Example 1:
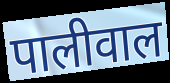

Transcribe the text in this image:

पालीवाल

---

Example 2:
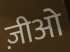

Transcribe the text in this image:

ज़ीओ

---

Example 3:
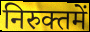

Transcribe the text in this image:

निरुक्तमें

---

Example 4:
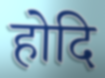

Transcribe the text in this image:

होदि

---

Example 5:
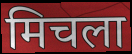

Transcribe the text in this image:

मिचला